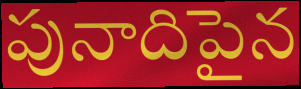
పునాదిపైన